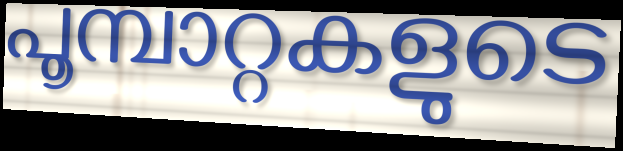
പൂമ്പാറ്റകളുടെ